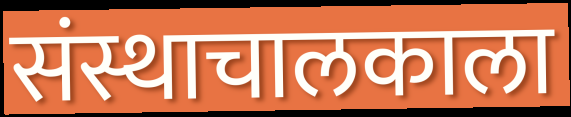
संस्थाचालकाला